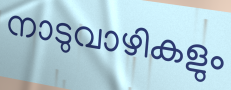
നാടുവാഴികളും